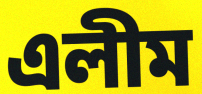
এলীম